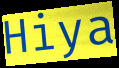
Hiya